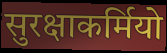
सुरक्षाकर्मियो